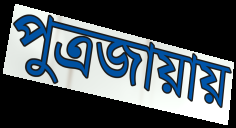
পুত্রজায়ায়